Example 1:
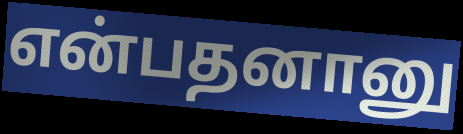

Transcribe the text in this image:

என்பதனானு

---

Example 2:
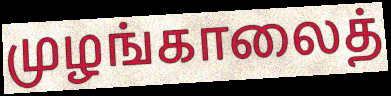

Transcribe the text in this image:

முழங்காலைத்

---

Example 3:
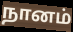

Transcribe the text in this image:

நானம்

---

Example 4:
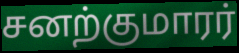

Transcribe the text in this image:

சனற்குமாரர்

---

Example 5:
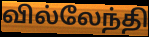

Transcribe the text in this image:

வில்லேந்தி